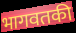
भागवतकी